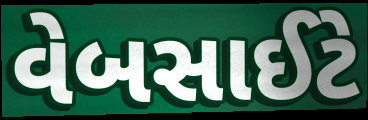
વેબસાઈટે